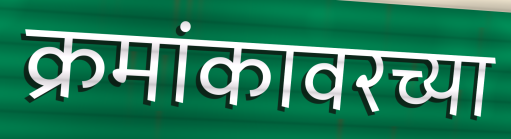
क्रमांकावरच्या